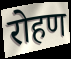
रोहण